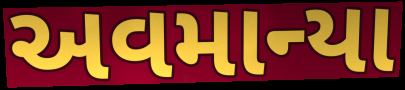
અવમાન્યા